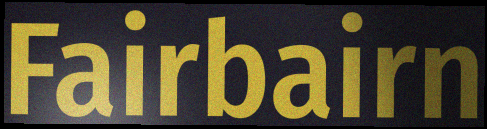
Fairbairn